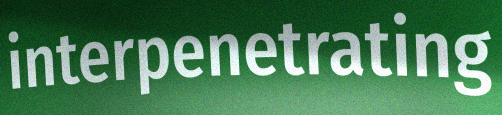
interpenetrating